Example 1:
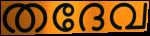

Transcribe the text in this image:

തദേവ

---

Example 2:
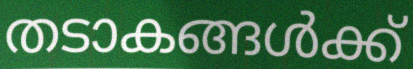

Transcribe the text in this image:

തടാകങ്ങൾക്ക്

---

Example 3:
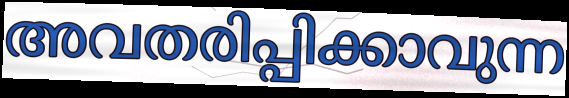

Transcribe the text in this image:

അവതരിപ്പിക്കാവുന്ന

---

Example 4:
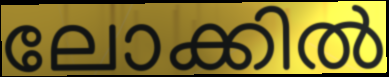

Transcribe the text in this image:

ലോക്കിൽ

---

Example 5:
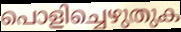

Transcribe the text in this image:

പൊളിച്ചെഴുതുക